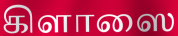
கிளாஸை